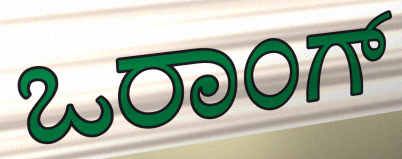
ಒರಾಂಗ್